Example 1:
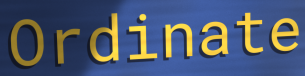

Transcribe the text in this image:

Ordinate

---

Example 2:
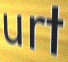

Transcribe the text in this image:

urt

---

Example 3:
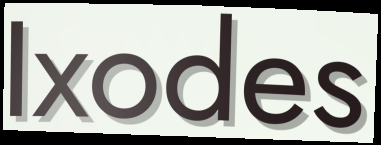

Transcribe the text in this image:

Ixodes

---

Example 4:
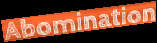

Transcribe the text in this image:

Abomination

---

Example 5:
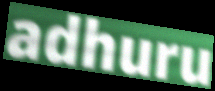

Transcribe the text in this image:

adhuru